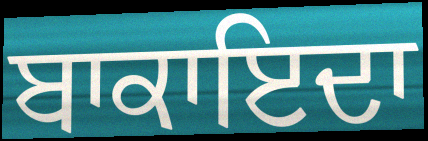
ਬਾਕਾਇਦਾ